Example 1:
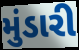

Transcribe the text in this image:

મુંડારી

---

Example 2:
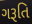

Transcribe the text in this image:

ગરૂતિ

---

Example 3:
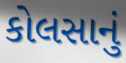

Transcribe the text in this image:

કોલસાનું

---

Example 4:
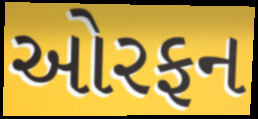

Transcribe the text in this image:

ઓરફન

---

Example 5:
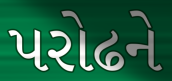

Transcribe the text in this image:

પરોઢને